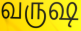
வருஷ